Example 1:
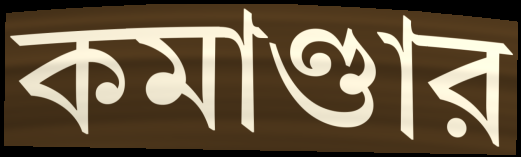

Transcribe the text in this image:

কমাণ্ডার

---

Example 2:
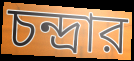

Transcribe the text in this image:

চন্দ্রার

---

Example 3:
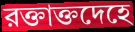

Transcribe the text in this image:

রক্তাক্তদেহে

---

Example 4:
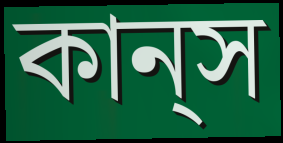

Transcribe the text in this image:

কান্‌স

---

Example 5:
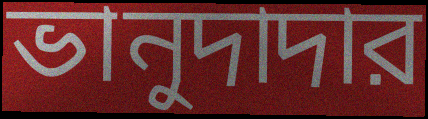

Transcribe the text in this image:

ভানুদাদার